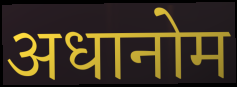
अधानोम